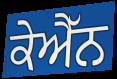
ਕੇਐੱਨ